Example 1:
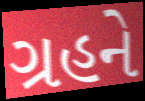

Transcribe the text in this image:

ગ્રહને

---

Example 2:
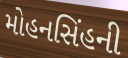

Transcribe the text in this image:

મોહનસિંહની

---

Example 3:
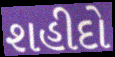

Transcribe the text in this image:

શહીદો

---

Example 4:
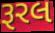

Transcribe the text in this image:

રૂરલ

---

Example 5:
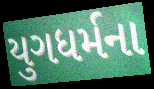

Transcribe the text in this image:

યુગધર્મના